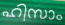
ഹിസാം